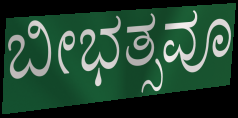
ಬೀಭತ್ಸವೂ